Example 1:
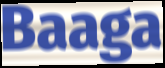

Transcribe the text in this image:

Baaga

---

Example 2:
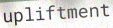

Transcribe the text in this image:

upliftment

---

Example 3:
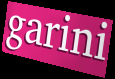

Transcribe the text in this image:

garini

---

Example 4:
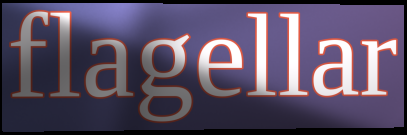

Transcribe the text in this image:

flagellar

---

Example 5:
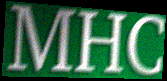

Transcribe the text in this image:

MHC